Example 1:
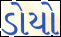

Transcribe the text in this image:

ડોયો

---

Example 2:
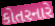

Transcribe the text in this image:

કોતરનારે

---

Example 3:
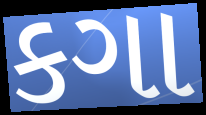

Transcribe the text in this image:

કગા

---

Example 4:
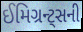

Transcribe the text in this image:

ઈમિગ્રન્ટ્સની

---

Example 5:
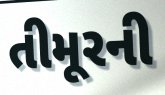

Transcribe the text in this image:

તીમૂરની